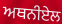
ਅਥਨੀਏਲ